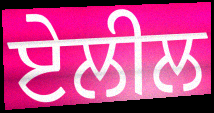
ਏਲੀਲ